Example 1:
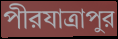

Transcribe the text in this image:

পীরযাত্রাপুর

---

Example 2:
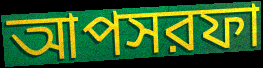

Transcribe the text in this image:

আপসরফা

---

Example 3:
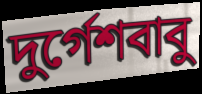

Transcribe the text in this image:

দুর্গেশবাবু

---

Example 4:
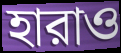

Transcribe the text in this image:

হারাও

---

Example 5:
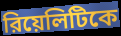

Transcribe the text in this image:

রিয়েলিটিকে